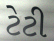
ટેટી